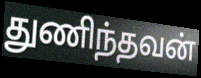
துணிந்தவன்